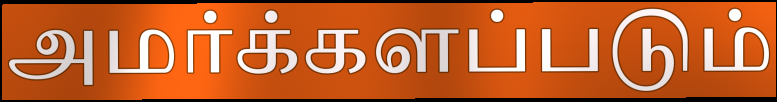
அமர்க்களப்படும்